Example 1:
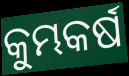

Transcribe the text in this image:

କୁମ୍ଭକର୍ଷ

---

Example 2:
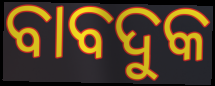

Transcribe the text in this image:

ବାବଦୁକ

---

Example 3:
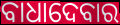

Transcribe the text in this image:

ବାଧାଦେବାର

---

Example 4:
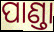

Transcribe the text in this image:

ପାଣ୍ଡା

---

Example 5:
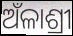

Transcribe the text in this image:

ଅଁଳାଶ୍ରୀ